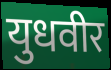
युधवीर